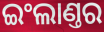
ଇଂଲାଣ୍ତର